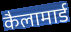
कैलामार्ड